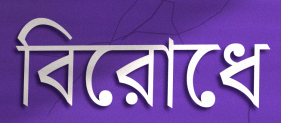
বিরোধে